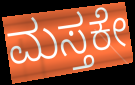
ಮಸ್ತಕೇ